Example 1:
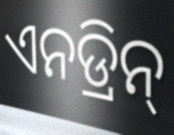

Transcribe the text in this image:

ଏନଡ୍ରିନ୍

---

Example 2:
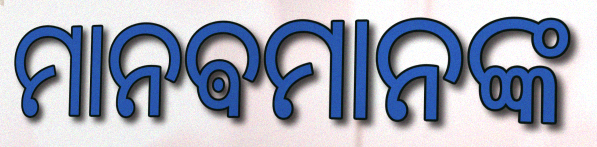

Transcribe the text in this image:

ମାନଵମାନଙ୍କ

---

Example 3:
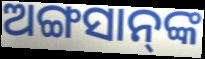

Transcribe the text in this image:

ଅଙ୍ଗସାନ୍‌ଙ୍କ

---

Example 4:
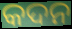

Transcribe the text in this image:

କଦନ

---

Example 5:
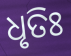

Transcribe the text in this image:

ଧୃତିଃ